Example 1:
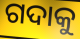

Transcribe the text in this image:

ଗଦାକୁ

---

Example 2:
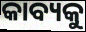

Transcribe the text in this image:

କାବ୍ୟକୁ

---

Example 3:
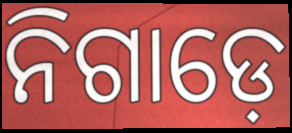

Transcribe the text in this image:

ନିଗାଡ଼େ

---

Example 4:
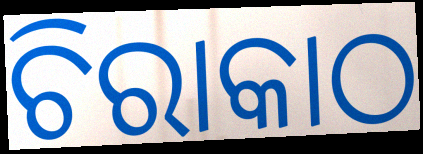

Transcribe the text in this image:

ଚିରାକାଠ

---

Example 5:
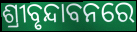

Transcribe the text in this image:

ଶ୍ରୀବୃନ୍ଦାବନରେ